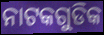
ନାଟକଗୁଡିକ